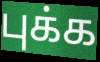
புக்க